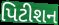
પિટીશન